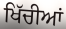
ਖਿੱਚੀਆਂ